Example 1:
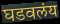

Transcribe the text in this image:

घडवलंय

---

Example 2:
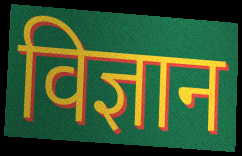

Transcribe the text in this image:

विज्ञान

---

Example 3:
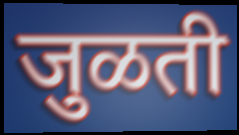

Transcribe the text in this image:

जुळती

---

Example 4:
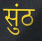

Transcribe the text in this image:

सुंठ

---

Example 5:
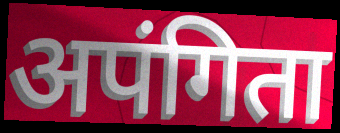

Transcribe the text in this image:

अपंगिता